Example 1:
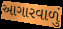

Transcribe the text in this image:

આગારવાળું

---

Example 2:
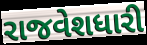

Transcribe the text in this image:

રાજવેશધારી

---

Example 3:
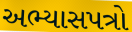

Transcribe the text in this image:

અભ્યાસપત્રો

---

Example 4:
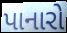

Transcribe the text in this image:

પાનારો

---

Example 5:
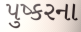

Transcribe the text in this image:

પુષ્કરના